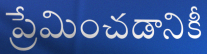
ప్రేమించడానికీ